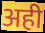
अही